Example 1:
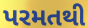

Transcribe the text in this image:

પરમતથી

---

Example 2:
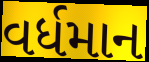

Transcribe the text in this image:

વર્ધમાન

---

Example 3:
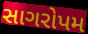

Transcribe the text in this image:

સાગરોપમ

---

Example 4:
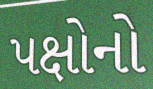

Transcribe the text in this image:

પક્ષોનો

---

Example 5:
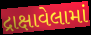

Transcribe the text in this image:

દ્રાક્ષાવેલામાં